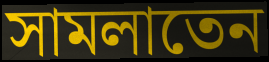
সামলাতেন